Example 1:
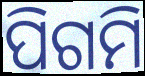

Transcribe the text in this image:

ପିଗମି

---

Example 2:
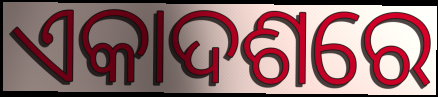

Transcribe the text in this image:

ଏକାଦଶରେ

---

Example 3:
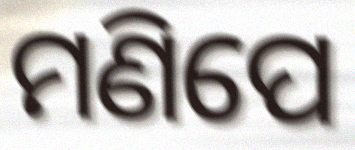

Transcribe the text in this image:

ମଣିପେ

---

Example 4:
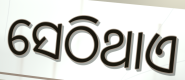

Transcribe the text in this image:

ସେଠିଥାଏ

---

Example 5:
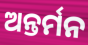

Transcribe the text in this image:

ଅନ୍ତର୍ମନ